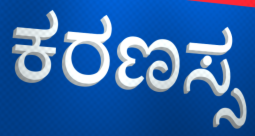
ಕರಣಸ್ಸ